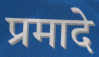
प्रमादे